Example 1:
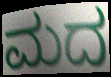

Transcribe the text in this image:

ಮದ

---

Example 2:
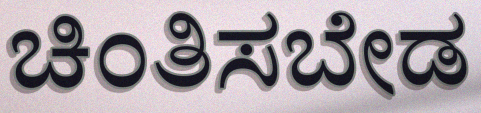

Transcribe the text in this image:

ಚಿಂತಿಸಬೇಡ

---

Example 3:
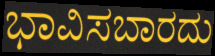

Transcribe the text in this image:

ಭಾವಿಸಬಾರದು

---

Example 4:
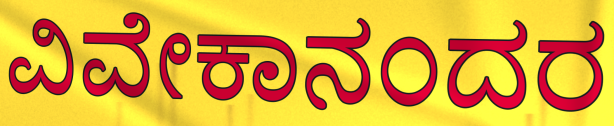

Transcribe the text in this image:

ವಿವೇಕಾನಂದರ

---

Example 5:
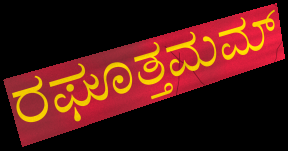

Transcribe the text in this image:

ರಘೂತ್ತಮಮ್